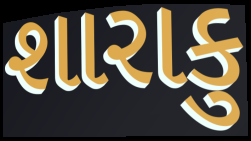
શારાકુ